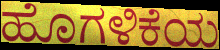
ಹೊಗಳಿಕೆಯ